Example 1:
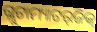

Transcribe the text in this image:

ଗ୍ଲୁଟାମ୍ୟାଟର୍‌ଜିକ୍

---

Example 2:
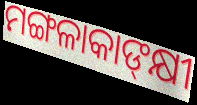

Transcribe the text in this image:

ମଙ୍ଗଳାକାଙ୍‍କ୍ଷୀ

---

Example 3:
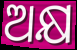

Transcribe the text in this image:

ଅକ୍ଷ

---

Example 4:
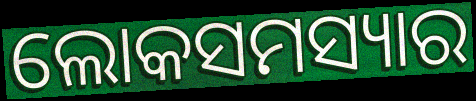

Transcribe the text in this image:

ଲୋକସମସ୍ୟାର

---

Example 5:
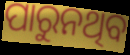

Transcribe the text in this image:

ପାରୁନଥିବ